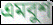
এমবুশ